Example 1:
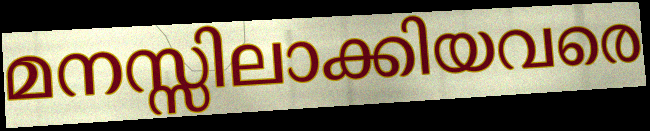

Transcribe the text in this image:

മനസ്സിലാക്കിയവരെ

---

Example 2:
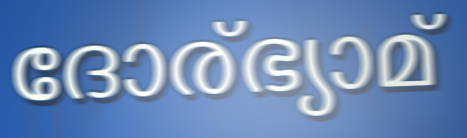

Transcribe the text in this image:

ദോര്ഭ്യാമ്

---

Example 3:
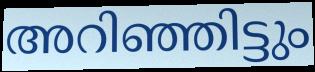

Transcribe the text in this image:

അറിഞ്ഞിട്ടും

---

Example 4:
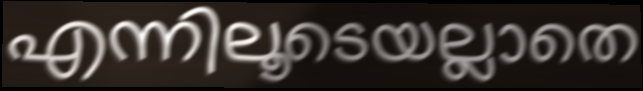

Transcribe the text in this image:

എന്നിലൂടെയല്ലാതെ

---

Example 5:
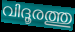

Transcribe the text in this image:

വിദൂരത്തു